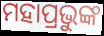
ମହାପ୍ରଭୁଙ୍କ